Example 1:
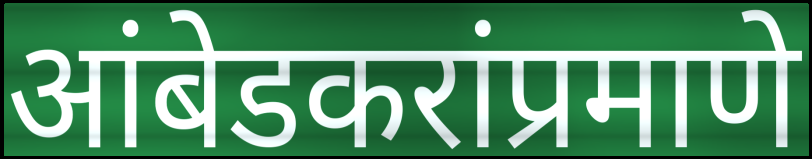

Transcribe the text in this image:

आंबेडकरांप्रमाणे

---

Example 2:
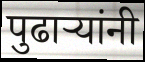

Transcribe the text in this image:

पुढाऱ्यांनी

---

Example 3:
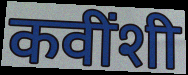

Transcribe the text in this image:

कवींशी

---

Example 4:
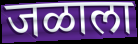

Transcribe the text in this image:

जळाला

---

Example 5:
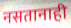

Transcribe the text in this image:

नसतानाही